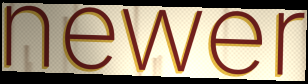
newer